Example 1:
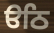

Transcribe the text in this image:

ੳਠਿ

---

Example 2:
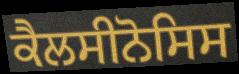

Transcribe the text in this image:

ਕੈਲਸੀਨੋਸਿਸ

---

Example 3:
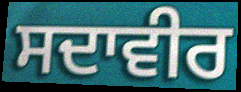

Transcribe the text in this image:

ਸਦਾਵੀਰ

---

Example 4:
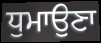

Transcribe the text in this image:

ਧੁਮਾਉਣਾ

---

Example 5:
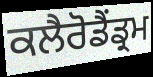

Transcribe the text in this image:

ਕਲੈਰੋਡੈਂਡ੍ਰਮ